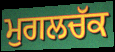
ਮੁਗਲਚੱਕ